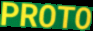
PROTO